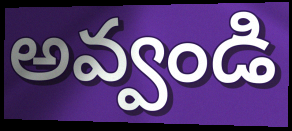
అవ్వండి